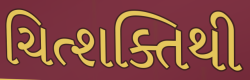
ચિત્શક્તિથી